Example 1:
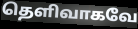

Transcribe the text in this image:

தெளிவாகவே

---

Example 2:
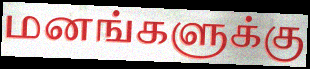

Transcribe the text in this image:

மனங்களுக்கு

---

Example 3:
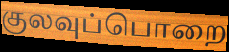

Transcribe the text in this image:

குலவுப்பொறை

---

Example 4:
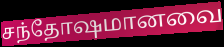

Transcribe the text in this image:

சந்தோஷமானவை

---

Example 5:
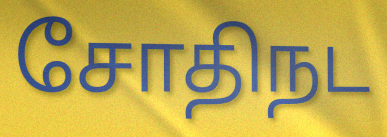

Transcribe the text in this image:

சோதிநட